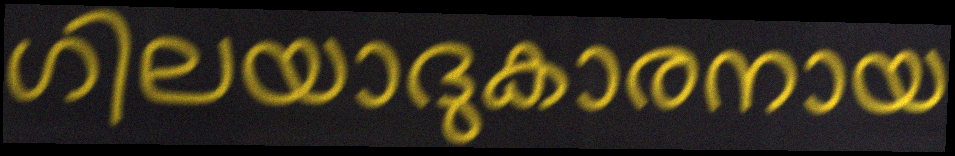
ഗിലയാദുകാരനായ